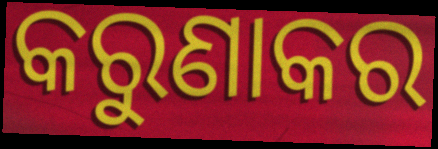
କରୁଣାକର